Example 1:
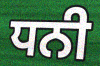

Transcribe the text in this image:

ਧਨੀ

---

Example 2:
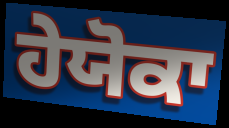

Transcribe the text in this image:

ਹੇਯੋਕਾ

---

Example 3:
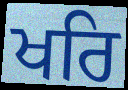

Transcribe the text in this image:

ਖਰਿ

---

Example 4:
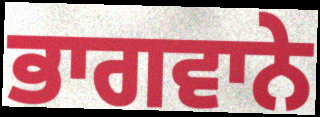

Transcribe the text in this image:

ਭਾਗਵਾਨੇ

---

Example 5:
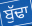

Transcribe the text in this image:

ਬੁੱਢਾ